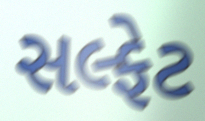
સલ્ફેટ